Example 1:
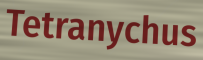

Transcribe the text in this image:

Tetranychus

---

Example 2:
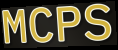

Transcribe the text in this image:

MCPS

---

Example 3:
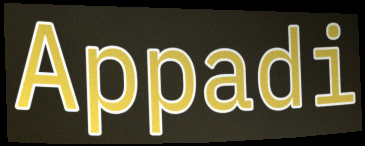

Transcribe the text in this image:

Appadi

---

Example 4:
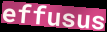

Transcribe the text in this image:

effusus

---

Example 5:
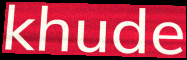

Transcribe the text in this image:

khude